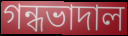
গন্ধভাদাল